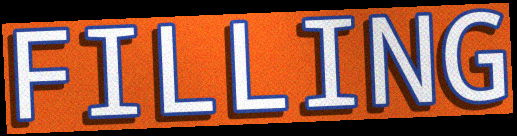
FILLING